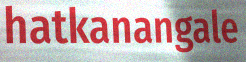
hatkanangale